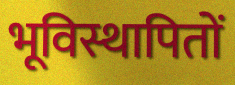
भूविस्थापितों